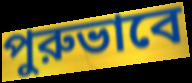
পুরুভাবে